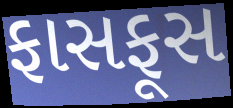
ફાસફૂસ